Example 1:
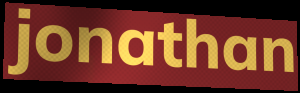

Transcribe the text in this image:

jonathan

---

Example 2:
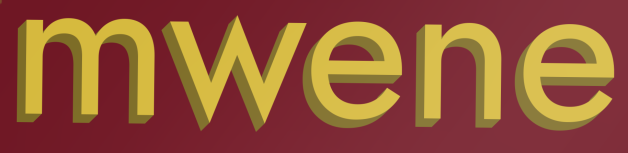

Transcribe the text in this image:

mwene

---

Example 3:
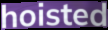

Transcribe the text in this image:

hoisted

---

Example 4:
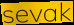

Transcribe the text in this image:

sevak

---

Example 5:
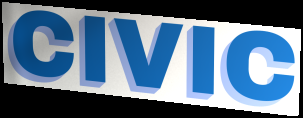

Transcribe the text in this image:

CIVIC